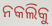
ନକଲିକୁ